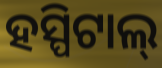
ହସ୍ପିଟାଲ୍